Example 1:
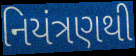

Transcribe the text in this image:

નિયંત્રણથી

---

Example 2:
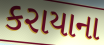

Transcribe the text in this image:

કરાયાના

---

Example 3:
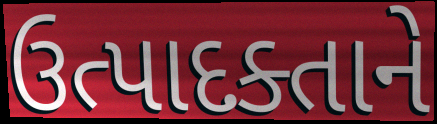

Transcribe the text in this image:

ઉત્પાદક્તાને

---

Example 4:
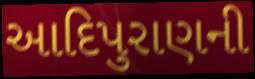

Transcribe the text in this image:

આદિપુરાણની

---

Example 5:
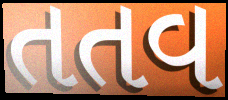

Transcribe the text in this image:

તતવ